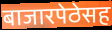
बाजारपेठेसह